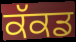
ਕੱਕਡ